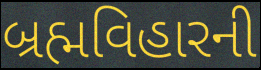
બ્રહ્મવિહારની